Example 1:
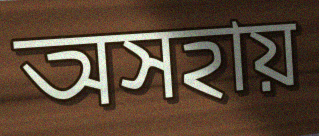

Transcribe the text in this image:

অসহায়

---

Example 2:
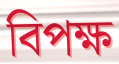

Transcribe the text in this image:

বিপক্ষ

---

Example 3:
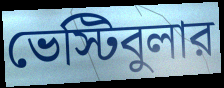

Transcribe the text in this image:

ভেস্টিবুলার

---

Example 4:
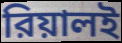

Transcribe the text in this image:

রিয়ালই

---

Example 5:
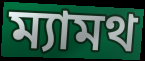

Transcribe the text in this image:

ম্যামথ